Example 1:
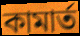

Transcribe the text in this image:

কামার্ত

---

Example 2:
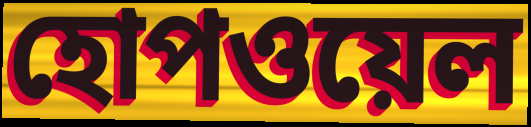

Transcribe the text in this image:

হোপওয়েল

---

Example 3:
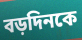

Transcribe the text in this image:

বড়দিনকে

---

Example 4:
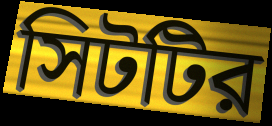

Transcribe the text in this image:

সিটটির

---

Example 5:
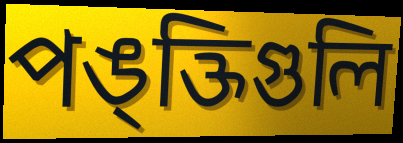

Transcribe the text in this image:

পঙ্‌ক্তিগুলি